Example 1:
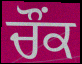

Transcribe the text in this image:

ਚੌਂਕ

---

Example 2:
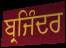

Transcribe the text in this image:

ਬ੍ਰਜਿੰਦਰ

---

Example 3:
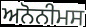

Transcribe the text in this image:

ਅਨੋਨੀਮਸ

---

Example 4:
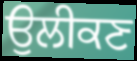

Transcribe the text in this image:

ਉਲੀਕਣ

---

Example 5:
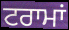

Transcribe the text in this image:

ਟਰਾਮਾਂ